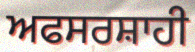
ਅਫਸਰਸ਼ਾਹੀ